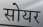
सोयर